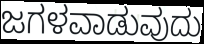
ಜಗಳವಾಡುವುದು